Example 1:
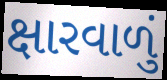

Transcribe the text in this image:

ક્ષારવાળું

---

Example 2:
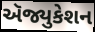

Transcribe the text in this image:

ઍજ્યુકેશન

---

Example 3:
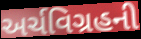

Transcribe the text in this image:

અર્ચવિગ્રહની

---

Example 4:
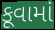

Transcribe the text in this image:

કૂવામાં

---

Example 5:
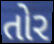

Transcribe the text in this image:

તોર